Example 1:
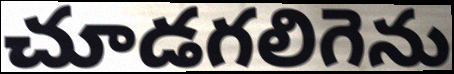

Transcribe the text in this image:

చూడగలిగెను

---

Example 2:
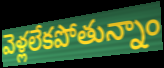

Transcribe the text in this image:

వెళ్లలేకపోతున్నాం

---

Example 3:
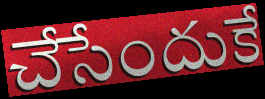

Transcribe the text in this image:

చేసేందుకే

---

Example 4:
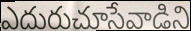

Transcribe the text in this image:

ఎదురుచూసేవాడిని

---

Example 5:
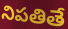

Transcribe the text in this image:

నిపతితే